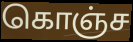
கொஞ்ச